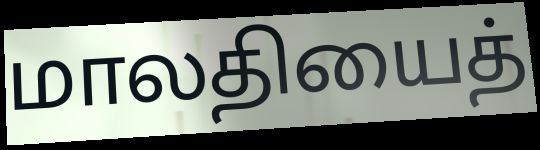
மாலதியைத்